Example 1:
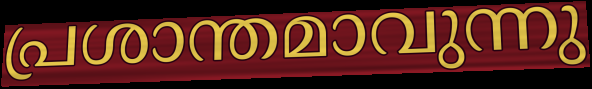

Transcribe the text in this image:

പ്രശാന്തമാവുന്നു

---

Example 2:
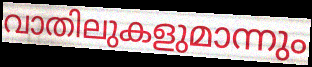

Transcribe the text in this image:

വാതിലുകളുമാന്നും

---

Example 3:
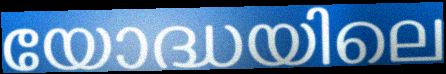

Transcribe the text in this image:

യോദ്ധയിലെ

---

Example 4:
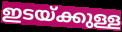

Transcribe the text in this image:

ഇടയ്ക്കുള്ള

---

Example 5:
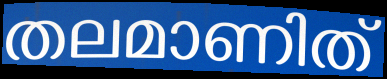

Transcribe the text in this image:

തലമാണിത്